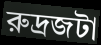
রুদ্রজটা